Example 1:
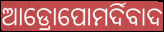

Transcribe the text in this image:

ଆଡ୍ରୋପୋମର୍ଦିବାଦ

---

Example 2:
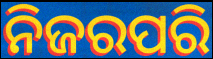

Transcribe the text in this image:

ନିଜରପରି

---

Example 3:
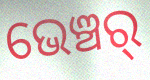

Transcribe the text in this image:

ଭେଞ୍ଚର୍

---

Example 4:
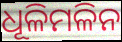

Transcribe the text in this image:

ଧୂଳିମଳିନ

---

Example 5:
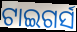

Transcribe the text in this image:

ଟାଇଗର୍ସ